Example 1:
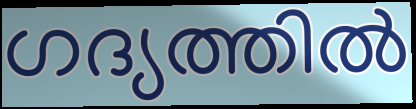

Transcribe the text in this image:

ഗദ്യത്തിൽ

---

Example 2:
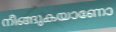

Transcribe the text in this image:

നീങ്ങുകയാണോ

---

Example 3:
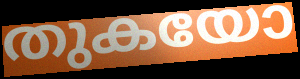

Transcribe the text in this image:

തുകയോ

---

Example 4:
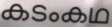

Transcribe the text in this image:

കടംകഥ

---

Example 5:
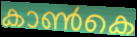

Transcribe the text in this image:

കാൺകെ